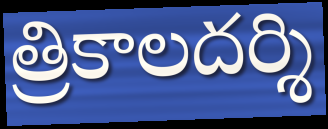
త్రికాలదర్శి